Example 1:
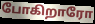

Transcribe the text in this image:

போகிறாரோ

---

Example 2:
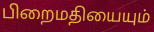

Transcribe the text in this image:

பிறைமதியையும்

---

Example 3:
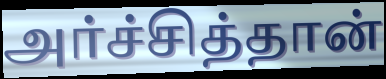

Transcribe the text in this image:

அர்ச்சித்தான்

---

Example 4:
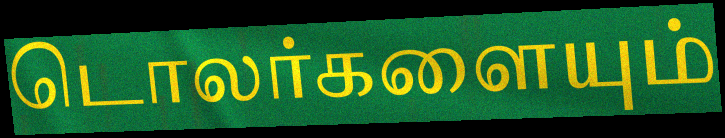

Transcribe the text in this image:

டொலர்களையும்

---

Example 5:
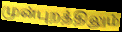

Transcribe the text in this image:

முன்புறத்திலும்